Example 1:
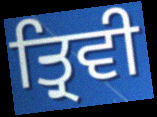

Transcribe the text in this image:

ਤ੍ਰਿਵੀ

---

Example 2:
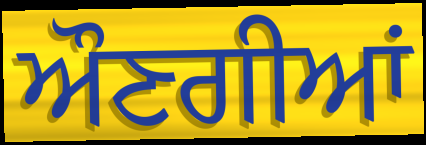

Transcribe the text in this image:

ਔਣਗੀਆਂ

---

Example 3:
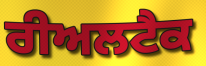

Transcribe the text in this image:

ਰੀਅਲਟੈਕ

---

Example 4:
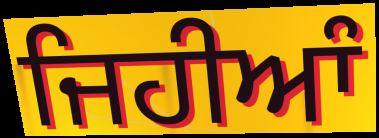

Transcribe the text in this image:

ਜਿਹੀਆੰ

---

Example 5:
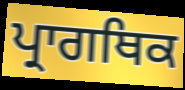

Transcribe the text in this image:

ਪ੍ਰਾਗਥਿਕ